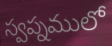
స్వప్నములో